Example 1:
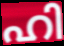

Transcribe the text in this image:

ഹി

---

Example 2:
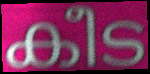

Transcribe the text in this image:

കീട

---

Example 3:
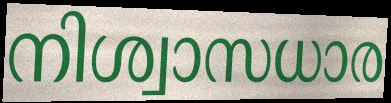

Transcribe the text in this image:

നിശ്വാസധാര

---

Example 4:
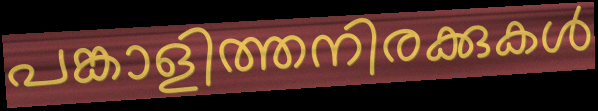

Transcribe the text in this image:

പങ്കാളിത്തനിരക്കുകൾ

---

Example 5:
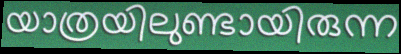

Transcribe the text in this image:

യാത്രയിലുണ്ടായിരുന്ന